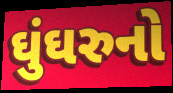
ઘુંઘરુનો